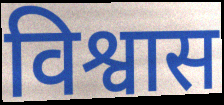
विश्वास